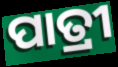
ପାତ୍ରୀ